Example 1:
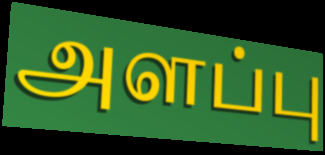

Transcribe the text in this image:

அளப்பு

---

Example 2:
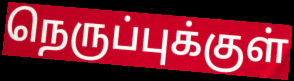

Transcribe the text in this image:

நெருப்புக்குள்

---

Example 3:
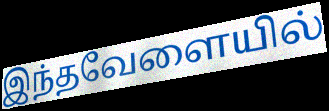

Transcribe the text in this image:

இந்தவேளையில்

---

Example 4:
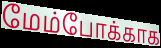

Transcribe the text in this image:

மேம்போக்காக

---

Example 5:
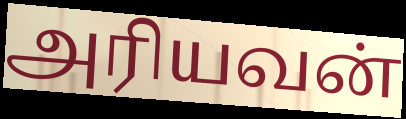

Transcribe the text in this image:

அரியவன்